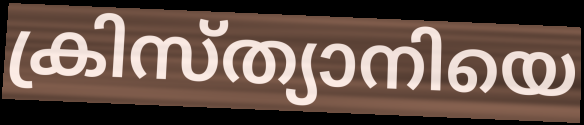
ക്രിസ്ത്യാനിയെ